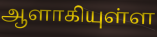
ஆளாகியுள்ள